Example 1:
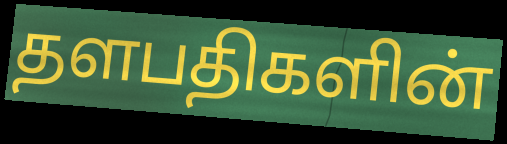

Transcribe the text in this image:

தளபதிகளின்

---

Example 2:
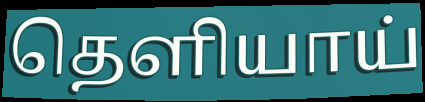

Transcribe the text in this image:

தெளியாய்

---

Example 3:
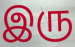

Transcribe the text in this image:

இரு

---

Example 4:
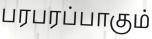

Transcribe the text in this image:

பரபரப்பாகும்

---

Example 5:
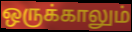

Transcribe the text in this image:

ஒருக்காலும்